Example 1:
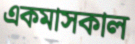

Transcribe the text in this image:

একমাসকাল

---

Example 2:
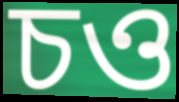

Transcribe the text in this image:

চও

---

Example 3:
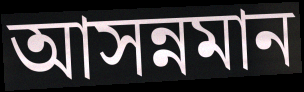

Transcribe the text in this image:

আসন্নমান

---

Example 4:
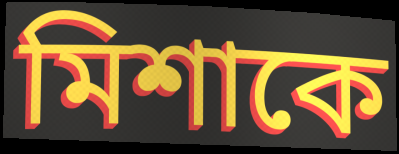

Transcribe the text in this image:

মিশাকে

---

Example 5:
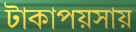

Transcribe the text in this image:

টাকাপয়সায়